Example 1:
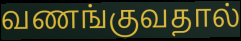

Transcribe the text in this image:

வணங்குவதால்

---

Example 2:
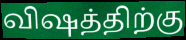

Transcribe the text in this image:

விஷத்திற்கு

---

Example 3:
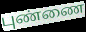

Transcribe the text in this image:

புண்ணை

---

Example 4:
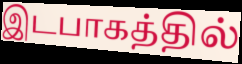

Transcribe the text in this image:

இடபாகத்தில்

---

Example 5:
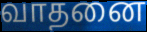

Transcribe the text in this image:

வாதனை